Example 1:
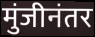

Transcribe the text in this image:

मुंजीनंतर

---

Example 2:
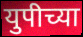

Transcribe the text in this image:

युपीच्या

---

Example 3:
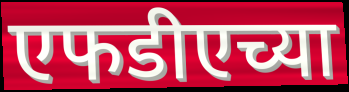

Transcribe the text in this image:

एफडीएच्या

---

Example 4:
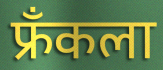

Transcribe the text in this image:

फ्रॅंकला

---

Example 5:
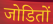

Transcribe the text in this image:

जोडितों